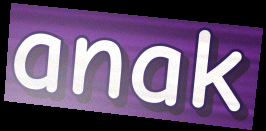
anak